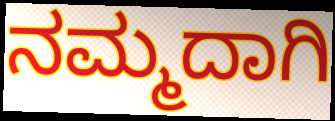
ನಮ್ಮದಾಗಿ